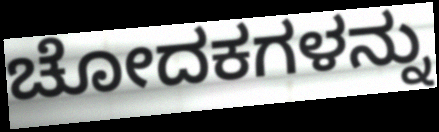
ಚೋದಕಗಳನ್ನು